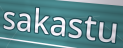
sakastu